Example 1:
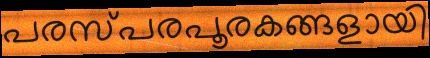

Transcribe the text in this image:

പരസ്പരപൂരകങ്ങളായി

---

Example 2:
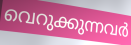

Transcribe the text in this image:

വെറുക്കുന്നവർ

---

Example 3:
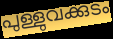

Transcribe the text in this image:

പുള്ളുവക്കുടം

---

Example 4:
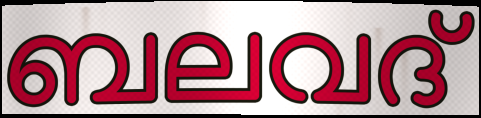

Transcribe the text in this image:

ബലവദ്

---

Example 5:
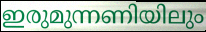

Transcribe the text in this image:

ഇരുമുന്നണിയിലും